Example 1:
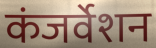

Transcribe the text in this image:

कंजर्वेशन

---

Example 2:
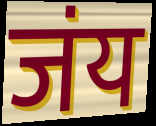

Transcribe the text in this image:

जंय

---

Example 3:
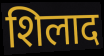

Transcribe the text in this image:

शिलाद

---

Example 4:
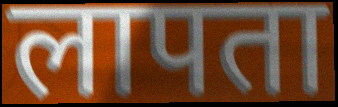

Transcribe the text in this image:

लापता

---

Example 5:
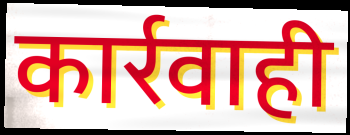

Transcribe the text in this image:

कार्रवाही